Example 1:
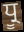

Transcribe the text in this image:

ਧ੍ਰੂ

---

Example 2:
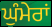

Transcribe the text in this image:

ਘੁੰਮੇਰਾਂ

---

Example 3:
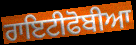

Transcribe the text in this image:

ਰਾਇਟੀਫੋਬੀਆ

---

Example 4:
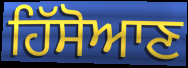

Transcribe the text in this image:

ਹਿੱਸੋਆਣ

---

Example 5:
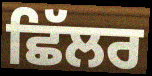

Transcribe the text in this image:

ਛਿੱਲਰ